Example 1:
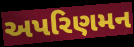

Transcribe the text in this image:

અપરિણમન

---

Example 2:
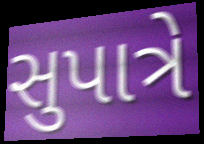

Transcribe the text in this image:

સુપાત્રે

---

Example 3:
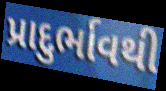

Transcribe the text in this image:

પ્રાદુર્ભાવથી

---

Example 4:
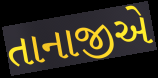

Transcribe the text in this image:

તાનાજીએ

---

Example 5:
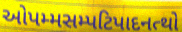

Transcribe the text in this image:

ઓપમ્મસમ્પટિપાદનત્થો